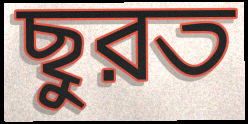
ছুরত